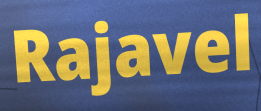
Rajavel